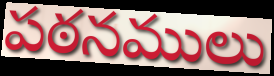
పఠనములు